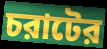
চরাটের